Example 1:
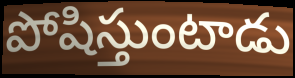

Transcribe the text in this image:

పోషిస్తుంటాడు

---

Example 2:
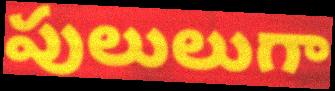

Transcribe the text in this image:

పులులుగా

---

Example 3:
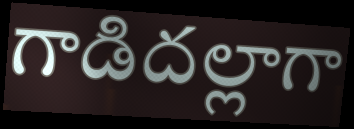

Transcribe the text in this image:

గాడిదల్లాగా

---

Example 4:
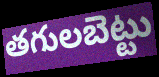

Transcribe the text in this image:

తగులబెట్టు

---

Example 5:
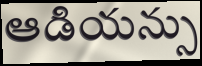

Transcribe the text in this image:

ఆడియన్సు